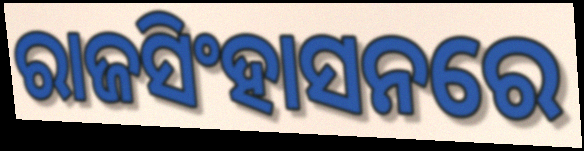
ରାଜସିଂହାସନରେ